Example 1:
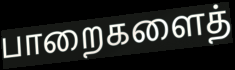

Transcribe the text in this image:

பாறைகளைத்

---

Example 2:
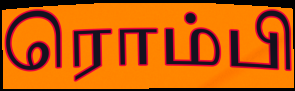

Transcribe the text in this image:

ரொம்பி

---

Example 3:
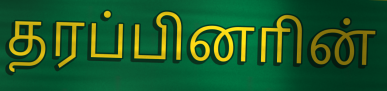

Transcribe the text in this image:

தரப்பினரின்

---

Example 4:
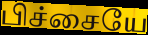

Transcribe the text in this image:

பிச்சையே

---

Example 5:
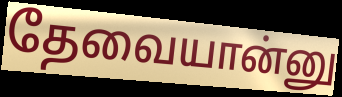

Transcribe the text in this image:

தேவையான்னு